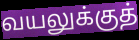
வயலுக்குத்